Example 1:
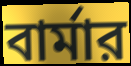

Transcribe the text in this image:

বার্মার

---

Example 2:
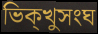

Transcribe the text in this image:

ভিক্খুসংঘ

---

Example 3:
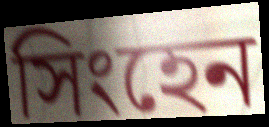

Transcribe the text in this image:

সিংহেন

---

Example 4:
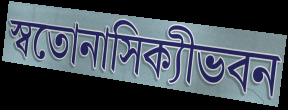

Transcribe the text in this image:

স্বতোনাসিক্যীভবন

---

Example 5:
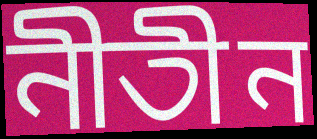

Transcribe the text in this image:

নীতীন